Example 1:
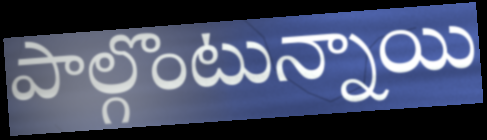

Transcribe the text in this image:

పాల్గొంటున్నాయి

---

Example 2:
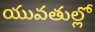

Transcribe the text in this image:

యువతుల్లో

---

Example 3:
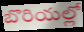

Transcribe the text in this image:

బొరియల్లో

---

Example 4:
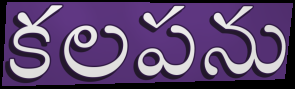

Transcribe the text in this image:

కలపను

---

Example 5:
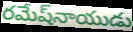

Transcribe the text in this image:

రమేష్‌నాయుడు